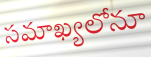
సమాఖ్యలోనూ